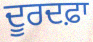
ਦੂਰਦਫ਼ਾ